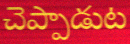
చెప్పాడుట